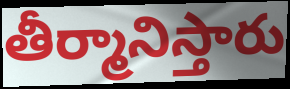
తీర్మానిస్తారు